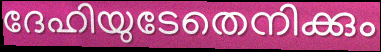
ദേഹിയുടേതെനിക്കും